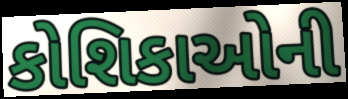
કોશિકાઓની